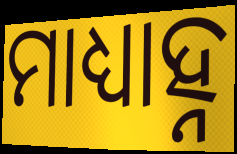
ମାଧ୍ୟାହ୍ନ